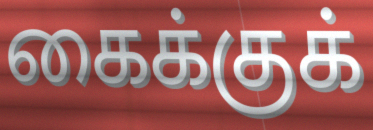
கைக்குக்